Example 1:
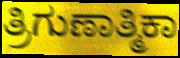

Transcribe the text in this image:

ತ್ರಿಗುಣಾತ್ಮಿಕಾ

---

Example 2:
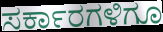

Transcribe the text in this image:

ಸರ್ಕಾರಗಳಿಗೂ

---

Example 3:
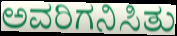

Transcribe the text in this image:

ಅವರಿಗನಿಸಿತು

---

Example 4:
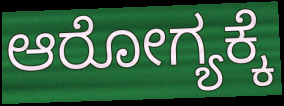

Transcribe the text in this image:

ಆರೋಗ್ಯಕ್ಕೆ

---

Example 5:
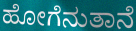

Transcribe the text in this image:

ಹೋಗೆನುತಾನೆ